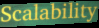
Scalability